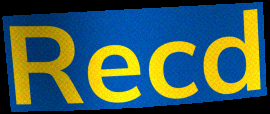
Recd